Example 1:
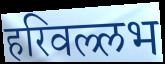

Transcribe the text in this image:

हरिवल्लभ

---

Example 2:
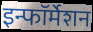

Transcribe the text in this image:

इन्फॉर्मेशन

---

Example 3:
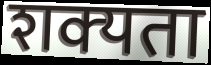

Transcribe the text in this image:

शक्‍यता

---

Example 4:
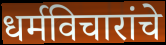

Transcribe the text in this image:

धर्मविचारांचे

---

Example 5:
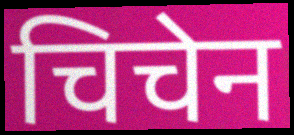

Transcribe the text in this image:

चिचेन